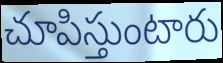
చూపిస్తుంటారు